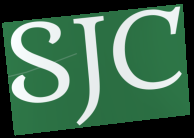
SJC